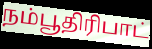
நம்பூதிரிபாட்